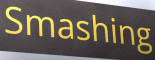
Smashing